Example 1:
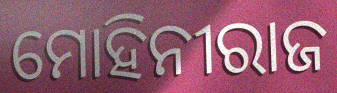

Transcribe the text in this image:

ମୋହିନୀରାଜ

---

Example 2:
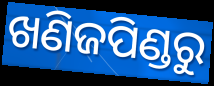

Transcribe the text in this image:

ଖଣିଜପିଣ୍ଡରୁ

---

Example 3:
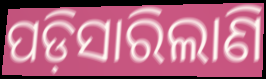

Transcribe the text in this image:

ପଡ଼ିସାରିଲାଣି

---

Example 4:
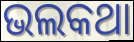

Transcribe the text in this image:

ଭଲକଥା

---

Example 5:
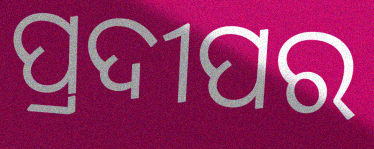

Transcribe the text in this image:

ପ୍ରଦୀପର